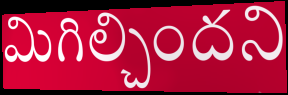
మిగిల్చిందని